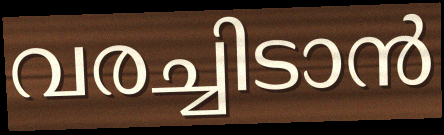
വരച്ചിടാൻ